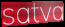
satva